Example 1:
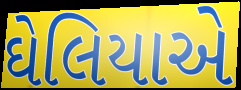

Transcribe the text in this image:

ઘેલિયાએ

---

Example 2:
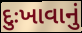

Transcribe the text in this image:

દુઃખાવાનું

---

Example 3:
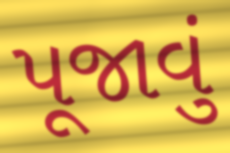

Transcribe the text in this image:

પૂજાવું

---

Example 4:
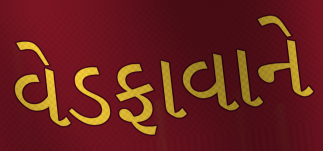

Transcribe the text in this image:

વેડફાવાને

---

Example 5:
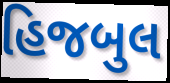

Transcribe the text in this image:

હિજબુલ